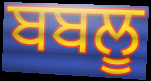
ਬਬਲੂ